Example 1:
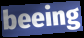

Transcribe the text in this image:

beeing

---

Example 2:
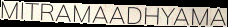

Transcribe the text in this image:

MITRAMAADHYAMA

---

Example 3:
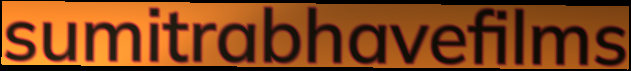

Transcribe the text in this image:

sumitrabhavefilms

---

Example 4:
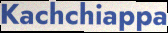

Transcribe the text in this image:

Kachchiappa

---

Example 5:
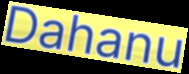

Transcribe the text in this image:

Dahanu